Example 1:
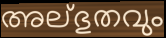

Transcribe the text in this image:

അല്ഭുതവും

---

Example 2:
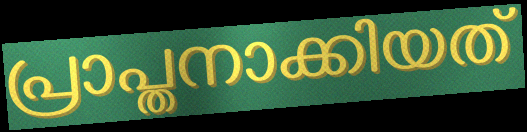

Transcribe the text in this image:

പ്രാപ്തനാക്കിയത്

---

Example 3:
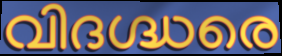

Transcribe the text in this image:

വിദഗ്ദ്ധരെ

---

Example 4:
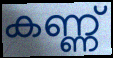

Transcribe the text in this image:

കണ്ണ്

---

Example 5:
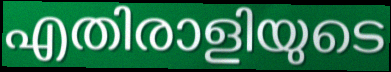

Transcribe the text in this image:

എതിരാളിയുടെ